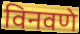
विनवणे